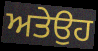
ਅਤੇਉਹ